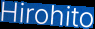
Hirohito